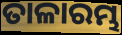
ତାଳାରମ୍ଭ